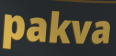
pakva